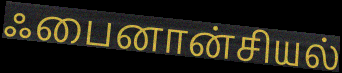
ஃபைனான்சியல்